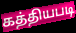
கத்தியபடி